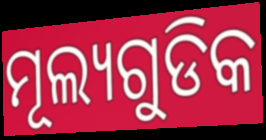
ମୂଲ୍ୟଗୁଡିକ